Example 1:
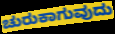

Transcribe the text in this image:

ಚುರುಕಾಗುವುದು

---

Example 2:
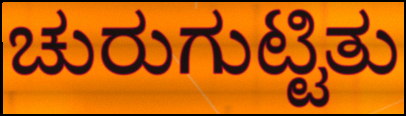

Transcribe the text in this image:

ಚುರುಗುಟ್ಟಿತು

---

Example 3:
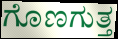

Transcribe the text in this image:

ಗೊಣಗುತ್ತ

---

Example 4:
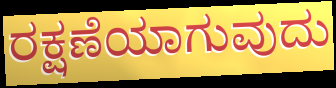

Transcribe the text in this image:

ರಕ್ಷಣೆಯಾಗುವುದು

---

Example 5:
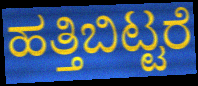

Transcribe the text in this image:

ಹತ್ತಿಬಿಟ್ಟರೆ